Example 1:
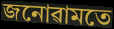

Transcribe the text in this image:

জনোৱামতে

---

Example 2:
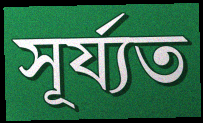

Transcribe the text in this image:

সূৰ্য্যত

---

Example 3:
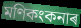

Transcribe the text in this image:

মণিকংকনাৰ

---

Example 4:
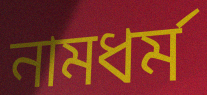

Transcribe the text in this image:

নামধৰ্ম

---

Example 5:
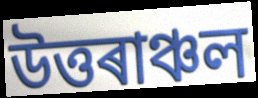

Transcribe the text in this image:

উত্তৰাঞ্চল